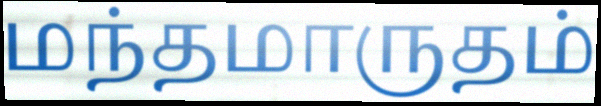
மந்தமாருதம்